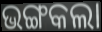
ଭଙ୍ଗକଲା